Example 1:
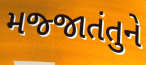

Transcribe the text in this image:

મજ્જાતંતુને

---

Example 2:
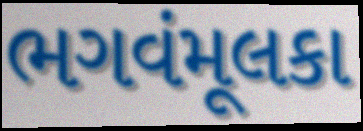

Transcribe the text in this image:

ભગવંમૂલકા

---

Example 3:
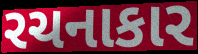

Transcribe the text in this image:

રચનાકાર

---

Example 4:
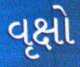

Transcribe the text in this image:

વૃક્ષો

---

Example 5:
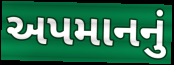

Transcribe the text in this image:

અપમાનનું